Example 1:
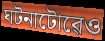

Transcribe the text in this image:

ঘটনাটোৱেও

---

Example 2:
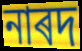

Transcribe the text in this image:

নাৰদ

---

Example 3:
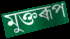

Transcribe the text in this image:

মুক্তৰূপ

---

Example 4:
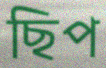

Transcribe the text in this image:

ছিপ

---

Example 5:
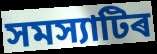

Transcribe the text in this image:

সমস্যাটিৰ